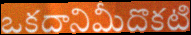
ఒకదానిమీదొకటి